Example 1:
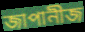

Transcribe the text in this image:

জাপানীজ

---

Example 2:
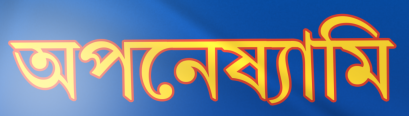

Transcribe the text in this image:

অপনেষ্যামি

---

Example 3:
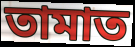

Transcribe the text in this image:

তামাত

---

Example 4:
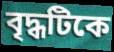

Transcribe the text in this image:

বৃদ্ধটিকে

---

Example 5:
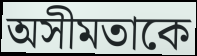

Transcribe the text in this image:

অসীমতাকে